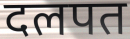
दलपत